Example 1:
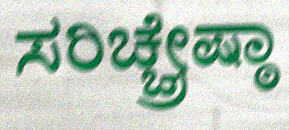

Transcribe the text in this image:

ಸರಿಚ್ಚ್ರೇಷ್ಠಾ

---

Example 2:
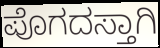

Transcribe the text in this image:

ಪೊಗದಸ್ತಾಗಿ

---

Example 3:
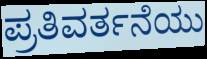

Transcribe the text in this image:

ಪ್ರತಿವರ್ತನೆಯು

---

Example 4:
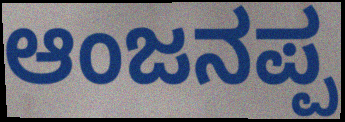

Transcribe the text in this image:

ಆಂಜನಪ್ಪ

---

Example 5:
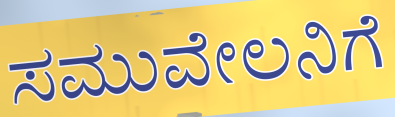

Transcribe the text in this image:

ಸಮುವೇಲನಿಗೆ